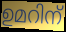
ഉമറിന്